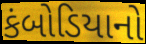
કંબોડિયાનો